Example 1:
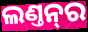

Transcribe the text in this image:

ଲଣ୍ତନ୍‌ର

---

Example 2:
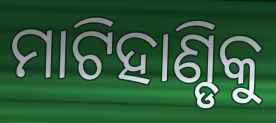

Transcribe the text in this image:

ମାଟିହାଣ୍ଡିକୁ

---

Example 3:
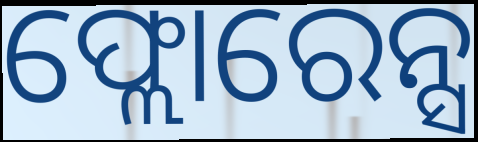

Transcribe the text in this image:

ଫ୍ଲୋରେନ୍ସ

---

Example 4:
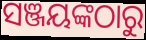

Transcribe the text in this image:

ସଞ୍ଜୟଙ୍କଠାରୁ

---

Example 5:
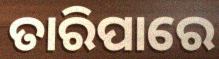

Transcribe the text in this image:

ତାରିପାରେ